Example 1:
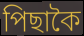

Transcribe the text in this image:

পিছাকৈ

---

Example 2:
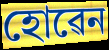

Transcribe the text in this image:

হোৱেন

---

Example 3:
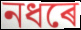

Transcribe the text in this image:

নধৰে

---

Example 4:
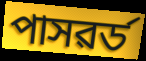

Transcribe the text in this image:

পাসৱৰ্ড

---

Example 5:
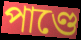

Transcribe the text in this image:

পাণ্ডে